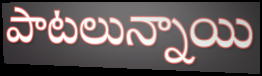
పాటలున్నాయి